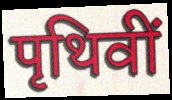
पृथिवीं